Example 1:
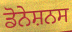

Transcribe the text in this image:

ਡੋਨੇਸ਼ਨਸ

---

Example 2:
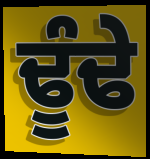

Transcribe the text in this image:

ਢੂੰਢੇ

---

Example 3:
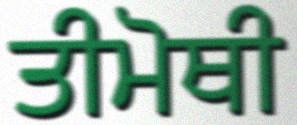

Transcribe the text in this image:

ਤੀਮੋਥੀ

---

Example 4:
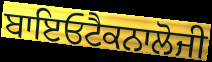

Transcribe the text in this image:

ਬਾਇਓਟੈਕਨਾਲੋਜੀ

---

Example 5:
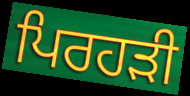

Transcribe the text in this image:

ਪਿਰਹੜੀ